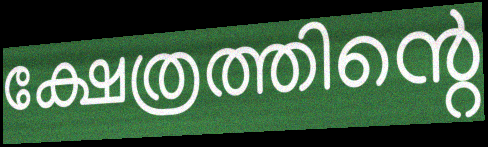
ക്ഷേത്രത്തിന്റെ